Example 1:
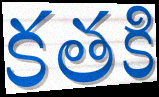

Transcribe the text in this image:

కతకి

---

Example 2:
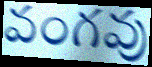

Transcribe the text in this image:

వంగవు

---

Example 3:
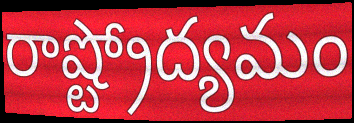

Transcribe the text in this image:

రాష్ట్రోద్యమం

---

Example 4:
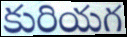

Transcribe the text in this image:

కురియగ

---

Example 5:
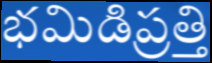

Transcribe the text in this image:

భమిడిప్రత్తి